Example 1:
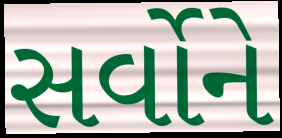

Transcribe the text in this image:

સર્વોને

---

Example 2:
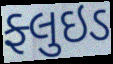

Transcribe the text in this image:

ફ્લુઇડ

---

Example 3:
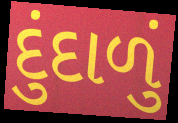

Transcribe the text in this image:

દુંદાળું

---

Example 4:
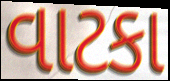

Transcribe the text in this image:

વાટકા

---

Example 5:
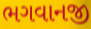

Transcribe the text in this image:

ભગવાનજી